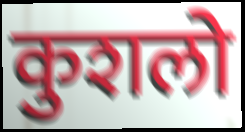
कुशलो